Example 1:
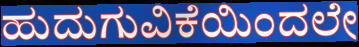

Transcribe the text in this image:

ಹುದುಗುವಿಕೆಯಿಂದಲೇ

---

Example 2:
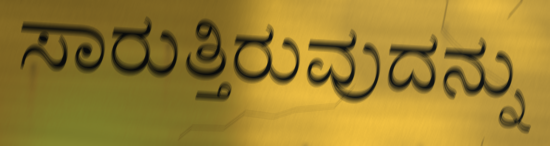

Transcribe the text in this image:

ಸಾರುತ್ತಿರುವುದನ್ನು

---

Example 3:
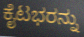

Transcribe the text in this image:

ಕೈಟಭರನ್ನು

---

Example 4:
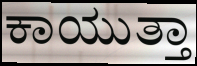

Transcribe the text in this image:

ಕಾಯುತ್ತಾ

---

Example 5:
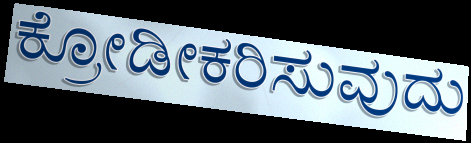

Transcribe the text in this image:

ಕ್ರೋಡೀಕರಿಸುವುದು